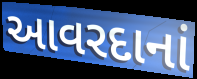
આવરદાનાં